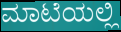
ಮಾಟೆಯಲ್ಲಿ